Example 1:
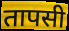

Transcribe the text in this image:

तापसी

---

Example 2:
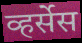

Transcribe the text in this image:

व्हर्सेस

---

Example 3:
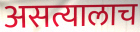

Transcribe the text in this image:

असत्यालाच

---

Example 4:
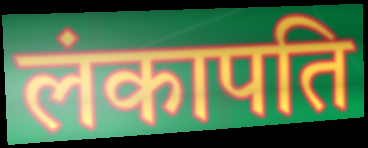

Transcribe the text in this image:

लंकापति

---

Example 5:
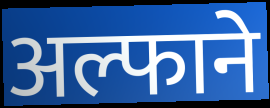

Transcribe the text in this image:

अल्फाने